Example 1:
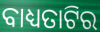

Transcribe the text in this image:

ବାଧ୍ୟତାଟିର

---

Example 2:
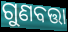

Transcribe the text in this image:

ଗୁଣବତ୍ତା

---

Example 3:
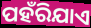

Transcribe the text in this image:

ପହଁରିଯାଏ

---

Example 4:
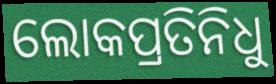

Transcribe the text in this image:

ଲୋକପ୍ରତିନିଧୁ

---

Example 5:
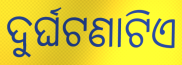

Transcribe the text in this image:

ଦୁର୍ଘଟଣାଟିଏ